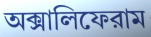
অক্সালিফেরাম